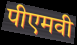
पीएमवी